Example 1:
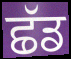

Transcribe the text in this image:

ਛੱਡ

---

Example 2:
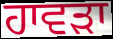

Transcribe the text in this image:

ਹਾਵਡ਼ਾ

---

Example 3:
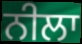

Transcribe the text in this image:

ਨੀਲਾ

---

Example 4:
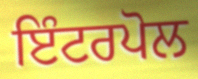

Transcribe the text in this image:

ਇੰਟਰਪੋਲ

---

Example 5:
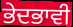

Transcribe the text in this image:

ਭੇਦਭਾਵੀ